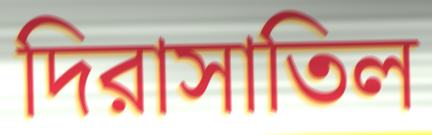
দিরাসাতিল